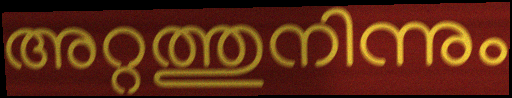
അറ്റത്തുനിന്നും